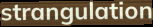
strangulation